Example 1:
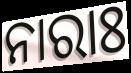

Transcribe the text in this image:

ନାରାଃ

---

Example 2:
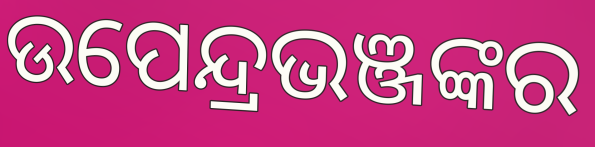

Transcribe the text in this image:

ଉପେନ୍ଦ୍ରଭଞ୍ଜଙ୍କର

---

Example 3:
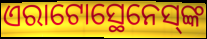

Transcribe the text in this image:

ଏରାଟୋସ୍ଥେନେସ୍‌ଙ୍କ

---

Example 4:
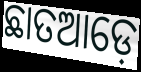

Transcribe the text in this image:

ଛାତଆଡ଼େ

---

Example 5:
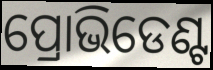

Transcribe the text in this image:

ପ୍ରୋଭିଡେଣ୍ଟ